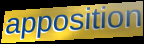
apposition